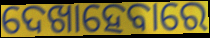
ଦେଖାହେବାରେ